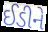
ઈડીને